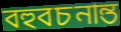
বহুবচনান্ত